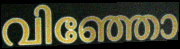
വിഞ്ഞോ